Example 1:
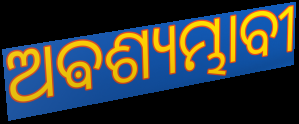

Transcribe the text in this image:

ଅଵଶ୍ୟମ୍ଭାବୀ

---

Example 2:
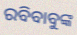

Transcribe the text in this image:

ରବିବାବୁଙ୍କ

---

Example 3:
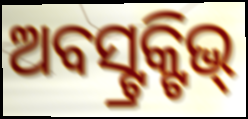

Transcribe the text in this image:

ଅବସ୍ଟ୍ରକ୍ଟିଭ୍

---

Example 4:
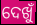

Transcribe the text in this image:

ଦେଖୁଁ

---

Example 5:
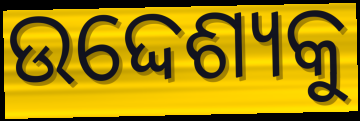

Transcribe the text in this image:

ଉଦ୍ଦେଶ୍ୟକୁ